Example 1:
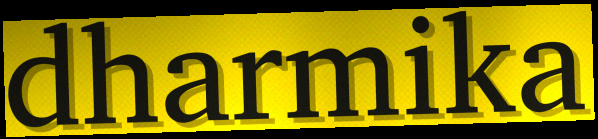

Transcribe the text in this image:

dharmika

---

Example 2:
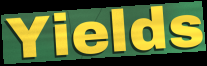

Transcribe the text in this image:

Yields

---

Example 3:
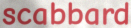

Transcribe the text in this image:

scabbard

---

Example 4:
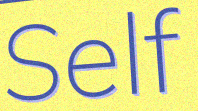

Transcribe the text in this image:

Self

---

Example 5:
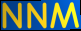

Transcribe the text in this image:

NNM